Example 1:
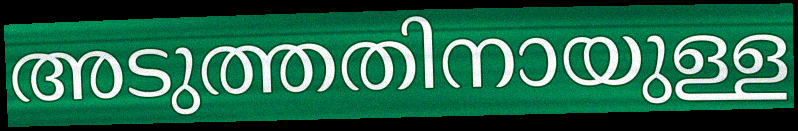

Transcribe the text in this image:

അടുത്തതിനായുള്ള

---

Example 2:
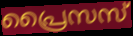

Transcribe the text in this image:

പ്രൈസസ്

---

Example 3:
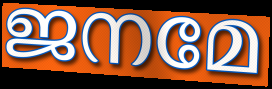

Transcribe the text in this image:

ജനമേ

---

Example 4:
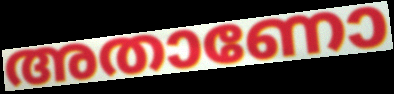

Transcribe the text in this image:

അതാണോ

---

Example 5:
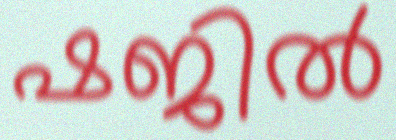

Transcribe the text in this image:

ഷജിൽ